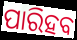
ପାରିହବ